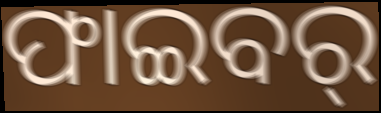
ଫାଇବର୍